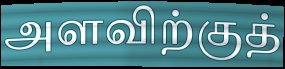
அளவிற்குத்